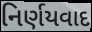
નિર્ણયવાદ